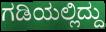
ಗಡಿಯಲ್ಲಿದ್ದು